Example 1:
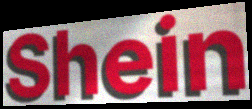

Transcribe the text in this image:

Shein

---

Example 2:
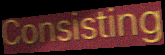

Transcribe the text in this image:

Consisting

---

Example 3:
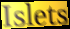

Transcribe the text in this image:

Islets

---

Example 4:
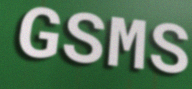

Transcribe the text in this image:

GSMS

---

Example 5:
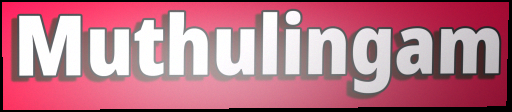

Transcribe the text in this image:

Muthulingam